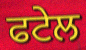
ਫਟੇਲ